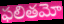
ఫలితమో